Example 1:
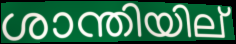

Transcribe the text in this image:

ശാന്തിയില്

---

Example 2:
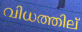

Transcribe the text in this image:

വിധത്തില്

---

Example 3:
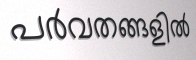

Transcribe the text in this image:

പർവതങ്ങളിൽ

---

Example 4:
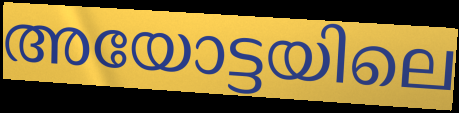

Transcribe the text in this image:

അയോട്ടയിലെ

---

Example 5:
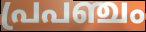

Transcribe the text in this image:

പ്രപഞ്ചം